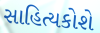
સાહિત્યકોશે